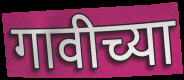
गावीच्या